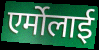
एर्मोलाई